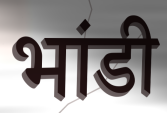
भांडी